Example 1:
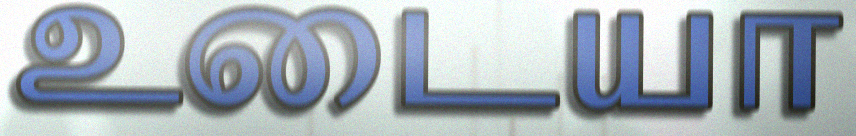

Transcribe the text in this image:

உடையா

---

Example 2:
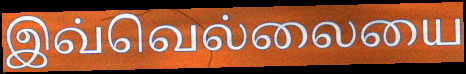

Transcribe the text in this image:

இவ்வெல்லையை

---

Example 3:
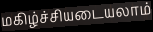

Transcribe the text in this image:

மகிழ்ச்சியடையலாம்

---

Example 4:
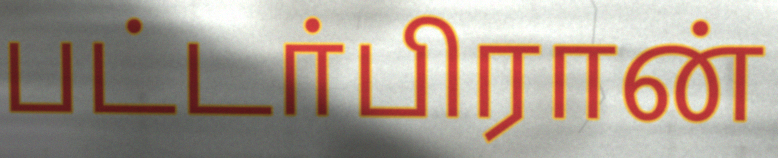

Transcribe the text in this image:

பட்டர்பிரான்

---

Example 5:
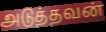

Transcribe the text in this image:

அடுத்தவன்